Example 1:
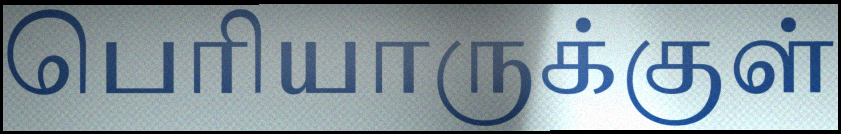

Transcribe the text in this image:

பெரியாருக்குள்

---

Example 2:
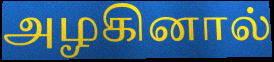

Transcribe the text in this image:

அழகினால்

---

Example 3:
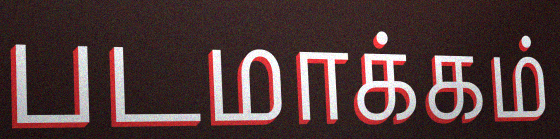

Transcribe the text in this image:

படமாக்கம்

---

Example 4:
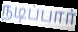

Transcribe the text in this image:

நடிப்பார்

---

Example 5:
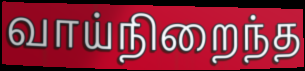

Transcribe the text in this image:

வாய்நிறைந்த